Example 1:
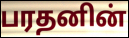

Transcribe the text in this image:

பரதனின்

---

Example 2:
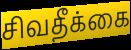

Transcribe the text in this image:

சிவதீக்கை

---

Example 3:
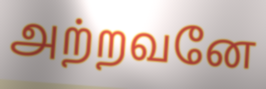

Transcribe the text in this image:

அற்றவனே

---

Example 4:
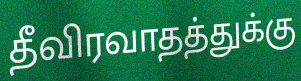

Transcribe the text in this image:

தீவிரவாதத்துக்கு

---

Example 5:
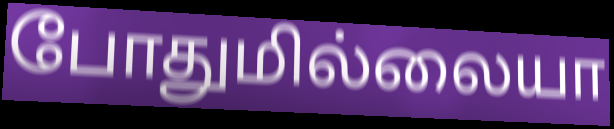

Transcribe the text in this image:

போதுமில்லையா